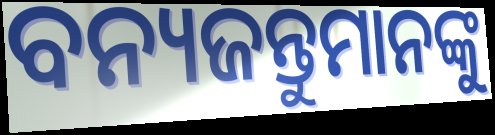
ବନ୍ୟଜନ୍ତୁମାନଙ୍କୁ